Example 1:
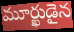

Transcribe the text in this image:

మూర్ఖుడైన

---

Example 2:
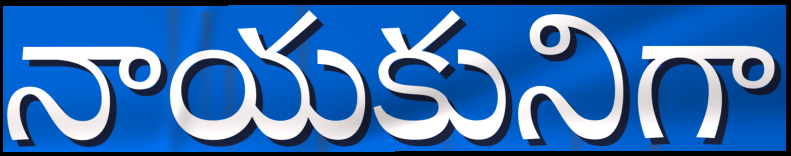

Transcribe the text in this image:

నాయకునిగా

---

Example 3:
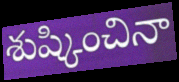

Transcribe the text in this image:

శుష్కించినా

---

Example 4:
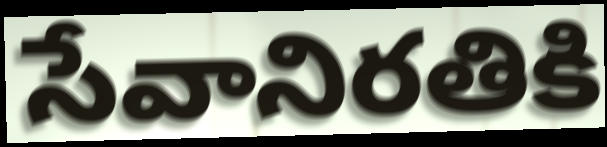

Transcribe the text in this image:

సేవానిరతికి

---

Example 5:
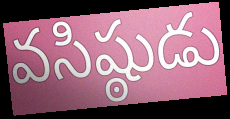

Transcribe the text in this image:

వసిష్ఠుడు